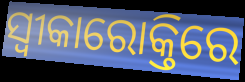
ସ୍ଵୀକାରୋକ୍ତିରେ